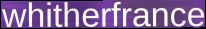
whitherfrance